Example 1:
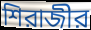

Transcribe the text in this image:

শিরাজীর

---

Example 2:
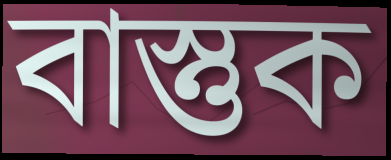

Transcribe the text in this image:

বাস্তুক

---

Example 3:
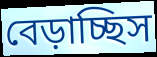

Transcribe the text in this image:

বেড়াচ্ছিস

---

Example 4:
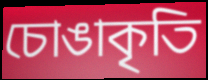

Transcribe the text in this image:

চোঙাকৃতি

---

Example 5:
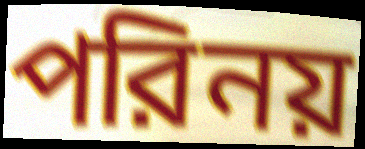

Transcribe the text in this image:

পরিনয়